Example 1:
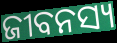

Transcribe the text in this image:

ଜୀବନସ୍ୟ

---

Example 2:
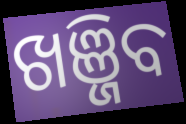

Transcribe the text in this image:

ଖଞ୍ଜିବ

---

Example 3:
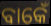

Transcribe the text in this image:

ବାକେଁ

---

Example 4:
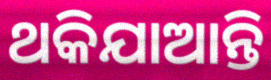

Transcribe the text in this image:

ଥକିଯାଆନ୍ତି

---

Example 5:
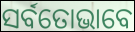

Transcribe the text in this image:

ସର୍ବତୋଭାବେ